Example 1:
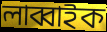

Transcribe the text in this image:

লাব্বাইক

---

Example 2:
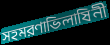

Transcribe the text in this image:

সহমরণাভিলাষিনী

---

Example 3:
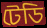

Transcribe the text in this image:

টেডি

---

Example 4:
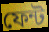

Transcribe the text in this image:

ফেন্ট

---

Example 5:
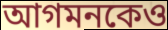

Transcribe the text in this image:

আগমনকেও